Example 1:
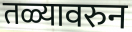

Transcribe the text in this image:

तळ्यावरुन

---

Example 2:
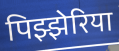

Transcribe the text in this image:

पिझ्झेरिया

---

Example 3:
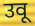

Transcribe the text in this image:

उवू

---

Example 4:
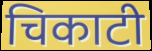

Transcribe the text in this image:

चिकाटी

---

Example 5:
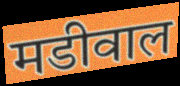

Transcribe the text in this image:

मडीवाल